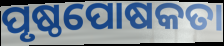
ପୃଷ୍ଠପୋଷକତା